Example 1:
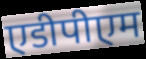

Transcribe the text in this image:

एडीपीएम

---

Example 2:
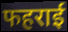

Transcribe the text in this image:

फहराई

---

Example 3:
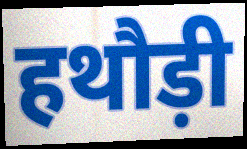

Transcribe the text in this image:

हथौड़ी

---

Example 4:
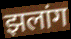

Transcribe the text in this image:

झलांग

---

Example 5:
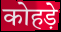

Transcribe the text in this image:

कोहड़े